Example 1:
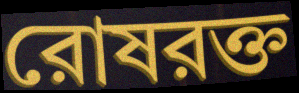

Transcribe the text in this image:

রোষরক্ত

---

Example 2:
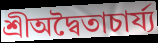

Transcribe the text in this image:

শ্রীঅদ্বৈতাচার্য্য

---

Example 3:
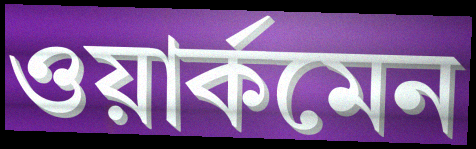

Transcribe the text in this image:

ওয়ার্কমেন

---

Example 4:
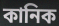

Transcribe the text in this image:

কানিক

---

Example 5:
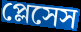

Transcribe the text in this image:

প্লেসেস